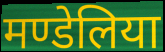
मण्डेलिया